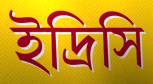
ইদ্রিসি